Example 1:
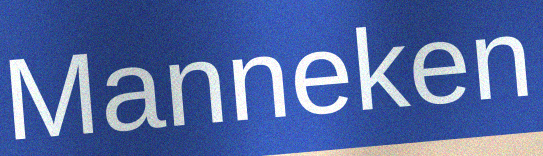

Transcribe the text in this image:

Manneken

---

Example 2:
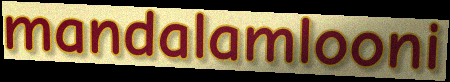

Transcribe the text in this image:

mandalamlooni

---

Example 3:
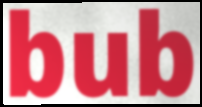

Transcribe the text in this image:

bub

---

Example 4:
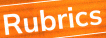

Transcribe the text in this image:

Rubrics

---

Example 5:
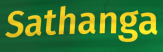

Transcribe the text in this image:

Sathanga